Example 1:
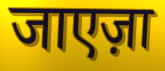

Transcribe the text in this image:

जाएज़ा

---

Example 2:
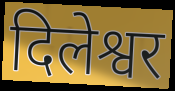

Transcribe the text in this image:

दिलेश्वर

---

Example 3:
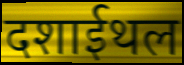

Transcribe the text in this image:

दशाईथल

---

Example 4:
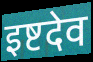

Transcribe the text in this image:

इष्टदेव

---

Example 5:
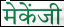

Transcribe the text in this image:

मेकेंजी